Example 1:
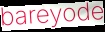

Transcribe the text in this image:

bareyode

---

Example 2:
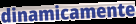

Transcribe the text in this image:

dinamicamente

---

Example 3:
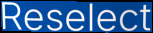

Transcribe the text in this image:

Reselect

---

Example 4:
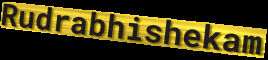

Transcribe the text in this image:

Rudrabhishekam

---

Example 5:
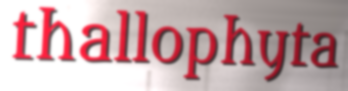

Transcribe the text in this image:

thallophyta